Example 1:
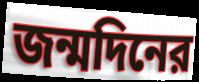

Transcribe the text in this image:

জন্মদিনের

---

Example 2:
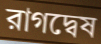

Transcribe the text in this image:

রাগদ্বেষ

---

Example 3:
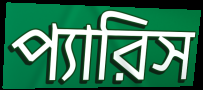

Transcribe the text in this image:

প্যারিস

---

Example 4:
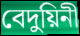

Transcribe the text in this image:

বেদুয়িনী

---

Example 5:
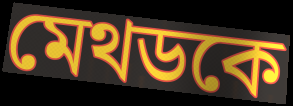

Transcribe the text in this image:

মেথডকে